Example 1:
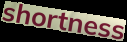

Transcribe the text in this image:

shortness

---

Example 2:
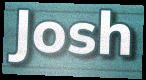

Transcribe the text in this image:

Josh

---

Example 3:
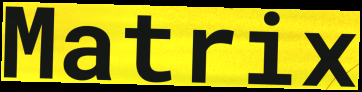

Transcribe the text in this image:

Matrix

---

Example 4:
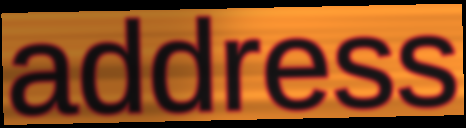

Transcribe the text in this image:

address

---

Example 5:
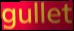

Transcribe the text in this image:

gullet